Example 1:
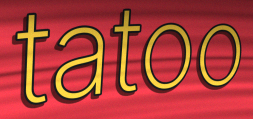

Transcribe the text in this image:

tatoo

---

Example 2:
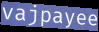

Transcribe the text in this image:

vajpayee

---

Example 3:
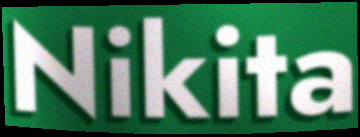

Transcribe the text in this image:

Nikita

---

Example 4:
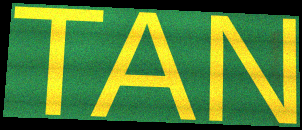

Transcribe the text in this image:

TAN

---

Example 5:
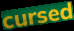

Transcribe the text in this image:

cursed